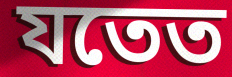
যতেত